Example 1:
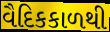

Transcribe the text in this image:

વૈદિકકાળથી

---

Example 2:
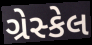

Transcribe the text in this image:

ગ્રેસ્કેલ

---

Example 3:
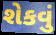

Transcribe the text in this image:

શેકવું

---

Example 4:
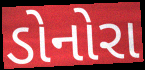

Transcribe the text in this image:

ડોનોરા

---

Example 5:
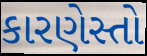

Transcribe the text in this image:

કારણેસ્તો